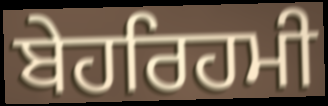
ਬੇਹਰਿਹਮੀ